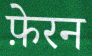
फ़ेरन